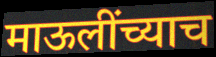
माऊलींच्याच